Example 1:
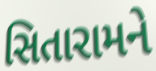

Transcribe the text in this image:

સિતારામને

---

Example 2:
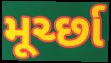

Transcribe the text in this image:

મૂર્ચ્છા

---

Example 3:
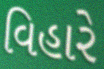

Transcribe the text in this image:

વિહારે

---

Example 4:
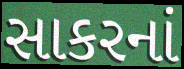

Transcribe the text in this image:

સાકરનાં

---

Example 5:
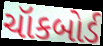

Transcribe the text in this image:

ચૉકબોર્ડ